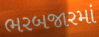
ભરબજારમાં